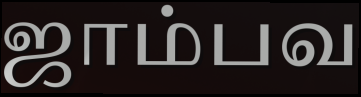
ஜாம்பவ